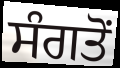
ਸੰਗਤੋਂ